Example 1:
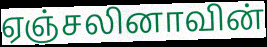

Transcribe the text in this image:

ஏஞ்சலினாவின்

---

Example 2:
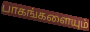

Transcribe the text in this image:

பாகங்களையும்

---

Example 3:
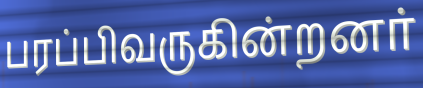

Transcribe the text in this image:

பரப்பிவருகின்றனர்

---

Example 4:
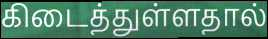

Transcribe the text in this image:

கிடைத்துள்ளதால்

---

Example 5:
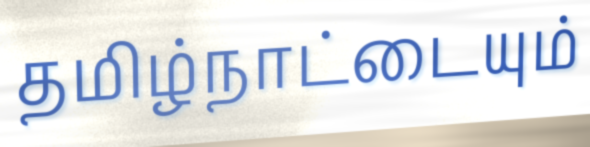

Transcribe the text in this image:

தமிழ்நாட்டையும்